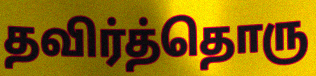
தவிர்த்தொரு